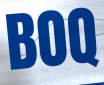
BOQ